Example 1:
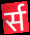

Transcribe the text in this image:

र्स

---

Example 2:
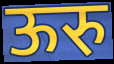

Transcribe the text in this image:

ऊरु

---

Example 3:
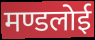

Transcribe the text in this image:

मण्डलोई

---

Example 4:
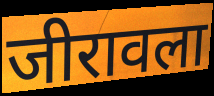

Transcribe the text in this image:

जीरावला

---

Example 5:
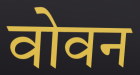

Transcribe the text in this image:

वोवन